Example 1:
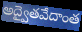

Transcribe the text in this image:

అద్వైతవేదాంత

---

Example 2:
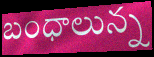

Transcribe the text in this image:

బంధాలున్న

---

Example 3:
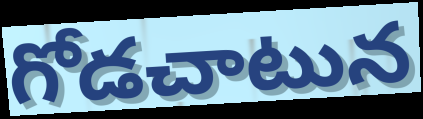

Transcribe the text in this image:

గోడచాటున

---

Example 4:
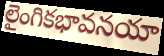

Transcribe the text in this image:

లైంగికభావనయా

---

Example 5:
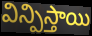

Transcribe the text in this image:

విన్పిస్తాయి